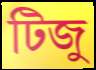
টিজু